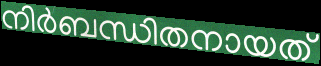
നിർബന്ധിതനായത്